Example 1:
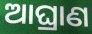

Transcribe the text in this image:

ଆଘ୍ରାଣ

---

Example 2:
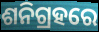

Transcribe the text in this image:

ଶନିଗ୍ରହରେ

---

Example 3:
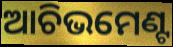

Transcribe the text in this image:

ଆଚିଭମେଣ୍ଟ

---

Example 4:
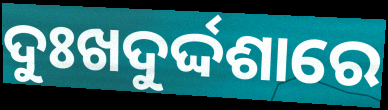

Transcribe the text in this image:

ଦୁଃଖଦୁର୍ଦ୍ଦଶାରେ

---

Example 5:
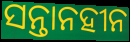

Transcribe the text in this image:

ସନ୍ତାନହୀନ